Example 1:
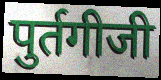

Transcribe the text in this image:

पुर्तगीजी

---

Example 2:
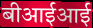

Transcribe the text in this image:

बीआईआई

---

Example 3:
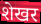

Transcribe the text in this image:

शेखर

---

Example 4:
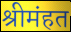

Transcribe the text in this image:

श्रीमंहत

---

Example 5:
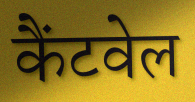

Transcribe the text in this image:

कैंटवेल